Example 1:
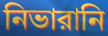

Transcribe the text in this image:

নিভারানি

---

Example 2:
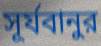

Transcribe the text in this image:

সূর্যবানুর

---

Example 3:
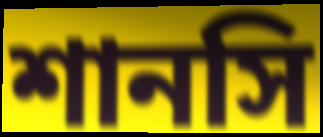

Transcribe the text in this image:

শানসি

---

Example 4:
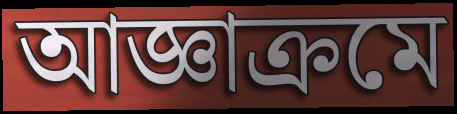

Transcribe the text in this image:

আজ্ঞাক্রমে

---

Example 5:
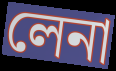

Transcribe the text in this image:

লেনা